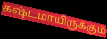
கஷ்டமாயிருக்கும்